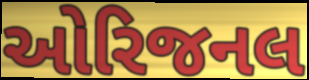
ઓરિજનલ